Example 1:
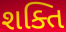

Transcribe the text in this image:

શક્તિ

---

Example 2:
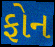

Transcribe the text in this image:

ફોન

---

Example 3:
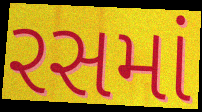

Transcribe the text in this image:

રસમાં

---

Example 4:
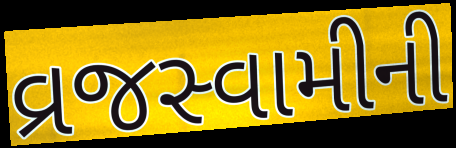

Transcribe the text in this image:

વ્રજસ્વામીની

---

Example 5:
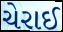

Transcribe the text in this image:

ચેરાઈ